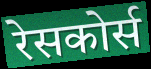
रेसकोर्स